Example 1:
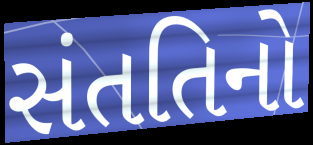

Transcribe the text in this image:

સંતતિનો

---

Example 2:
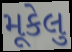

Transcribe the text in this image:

મૂકેલુ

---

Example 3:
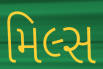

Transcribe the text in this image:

મિલ્સ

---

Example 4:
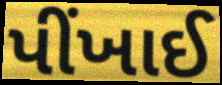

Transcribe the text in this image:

પીંખાઈ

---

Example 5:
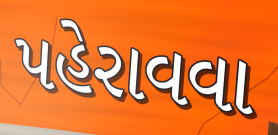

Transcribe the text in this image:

પહેરાવવા